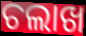
ଚଲାଖ